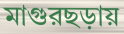
মাগুরছড়ায়